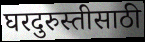
घरदुरुस्तीसाठी